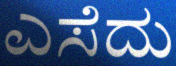
ಎಸೆದು